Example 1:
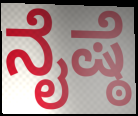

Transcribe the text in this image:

ನೈಷ್ಠೆ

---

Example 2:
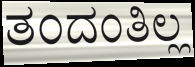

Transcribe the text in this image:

ತಂದಂತಿಲ್ಲ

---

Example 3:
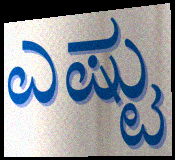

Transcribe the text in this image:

ಎಷ್ಟು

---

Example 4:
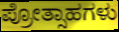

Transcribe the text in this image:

ಪ್ರೋತ್ಸಾಹಗಳು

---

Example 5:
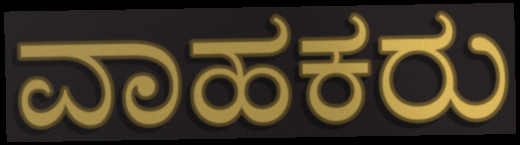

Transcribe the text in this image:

ವಾಹಕರು